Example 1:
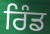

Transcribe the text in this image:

ਰਿੰਡ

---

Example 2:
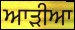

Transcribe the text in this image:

ਆੜੀਆ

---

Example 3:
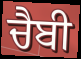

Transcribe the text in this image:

ਚੈਬੀ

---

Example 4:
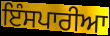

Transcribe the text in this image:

ਇੰਸਪਾਰੀਆ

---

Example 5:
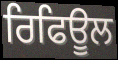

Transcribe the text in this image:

ਰਿਫਿਊਲ